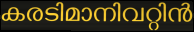
കരടിമാനിവറ്റിൻ